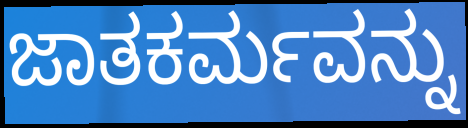
ಜಾತಕರ್ಮವನ್ನು